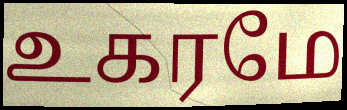
உகரமே